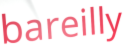
bareilly